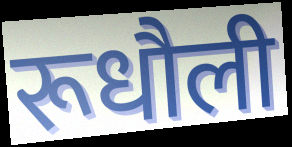
रूधौली